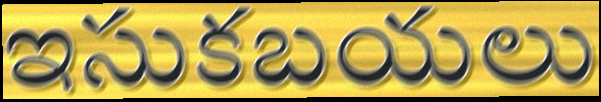
ఇసుకబయలు